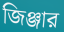
জিঞ্জার